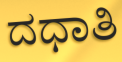
ದಧಾತಿ